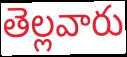
తెల్లవారు